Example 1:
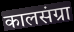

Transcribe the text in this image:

कालसंग्रा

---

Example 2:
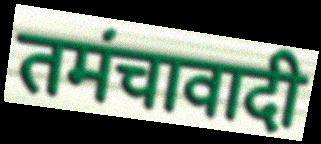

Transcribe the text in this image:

तमंचावादी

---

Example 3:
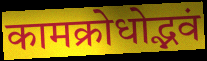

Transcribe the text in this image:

कामक्रोधोद्भवं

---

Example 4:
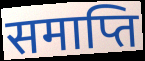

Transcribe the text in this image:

समाप्ति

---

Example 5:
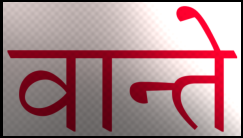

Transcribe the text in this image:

वान्ते